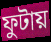
ফুটায়